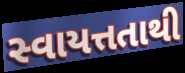
સ્વાયત્તતાથી